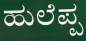
ಹುಲೆಪ್ಪ